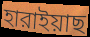
হারাইয়াছ